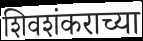
शिवशंकराच्या